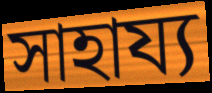
সাহায্য